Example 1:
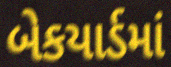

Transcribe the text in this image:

બેકયાર્ડમાં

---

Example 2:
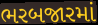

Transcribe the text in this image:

ભરબજારમાં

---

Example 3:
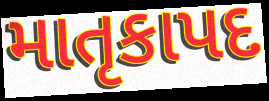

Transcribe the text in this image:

માતૃકાપદ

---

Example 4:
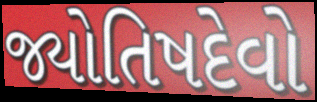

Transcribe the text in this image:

જ્યોતિષદેવો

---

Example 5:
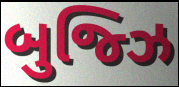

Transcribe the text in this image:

બુજ્ઝિ